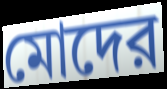
মোদের